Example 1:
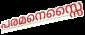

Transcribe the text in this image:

പരമനെസ്സൈ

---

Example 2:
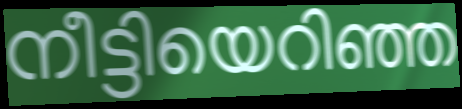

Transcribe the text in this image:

നീട്ടിയെറിഞ്ഞ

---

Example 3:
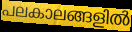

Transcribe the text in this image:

പലകാലങ്ങളിൽ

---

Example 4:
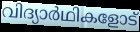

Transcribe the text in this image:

വിദ്യാർഥികളോട്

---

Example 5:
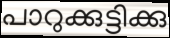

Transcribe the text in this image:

പാറുക്കുട്ടിക്കു